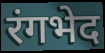
रंगभेद